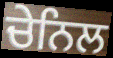
ਚੇਨਿਲ